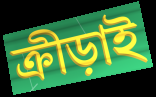
ক্রীড়াই